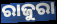
ରାଜୁରା